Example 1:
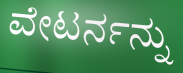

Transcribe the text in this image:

ವೇಟರ್ನನ್ನು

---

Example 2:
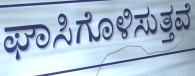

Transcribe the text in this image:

ಘಾಸಿಗೊಳಿಸುತ್ತವೆ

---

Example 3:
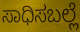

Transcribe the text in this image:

ಸಾಧಿಸಬಲ್ಲೆ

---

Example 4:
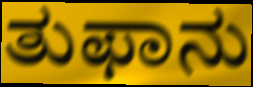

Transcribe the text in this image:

ತುಫಾನು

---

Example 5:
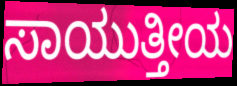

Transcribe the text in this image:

ಸಾಯುತ್ತೀಯ